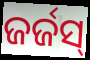
ଜର୍ଜସ୍